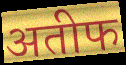
अतीफ